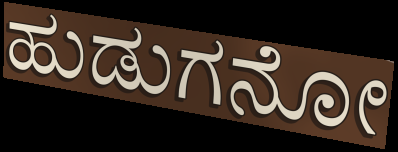
ಹುಡುಗನೋ